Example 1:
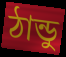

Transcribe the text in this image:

ঠান্ডু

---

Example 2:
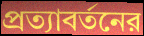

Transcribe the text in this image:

প্রত্যাবর্তনের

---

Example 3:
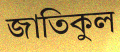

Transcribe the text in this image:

জাতিকুল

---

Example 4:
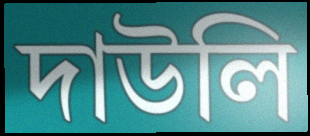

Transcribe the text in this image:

দাউলি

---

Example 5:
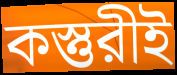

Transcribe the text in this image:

কস্তুরীই